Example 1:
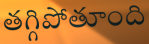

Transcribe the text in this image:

తగ్గిపోతూంది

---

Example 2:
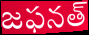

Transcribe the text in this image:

జఫనత్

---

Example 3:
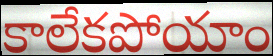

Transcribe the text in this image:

కాలేకపోయాం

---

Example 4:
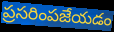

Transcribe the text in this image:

ప్రసరింపజేయడం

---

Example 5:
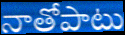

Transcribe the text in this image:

నాతోపాటు